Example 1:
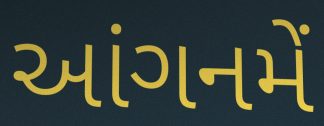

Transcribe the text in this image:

આંગનમેં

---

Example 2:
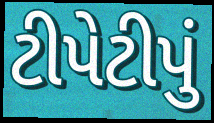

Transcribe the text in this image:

ટીપેટીપું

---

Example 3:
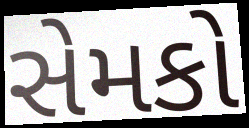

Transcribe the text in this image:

સેમકો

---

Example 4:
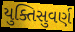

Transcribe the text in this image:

યુક્તિસુવર્ણ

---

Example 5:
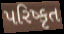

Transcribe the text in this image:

પરિષ્કૃત